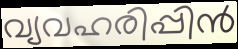
വ്യവഹരിപ്പിൻ